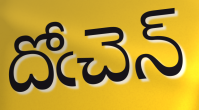
దోఁచెన్